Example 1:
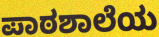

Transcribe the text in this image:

ಪಾಠಶಾಲೆಯ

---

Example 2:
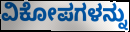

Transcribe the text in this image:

ವಿಕೋಪಗಳನ್ನು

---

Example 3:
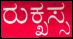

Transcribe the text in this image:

ರುಕ್ಖಸ್ಸ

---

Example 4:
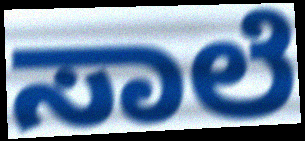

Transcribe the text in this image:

ಸಾಲೆ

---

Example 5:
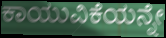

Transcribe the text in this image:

ಕಾಯುವಿಕೆಯನ್ನೇ